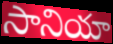
సానియా